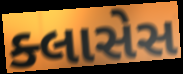
ક્લાસેસ